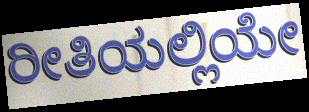
ರೀತಿಯಲ್ಲಿಯೇ